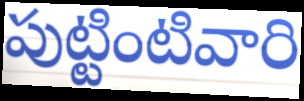
పుట్టింటివారి